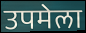
उपमेला